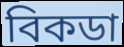
বিকডা